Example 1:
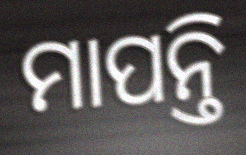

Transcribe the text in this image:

ମାପନ୍ତି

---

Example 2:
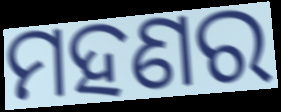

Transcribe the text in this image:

ମହଣର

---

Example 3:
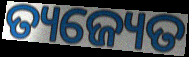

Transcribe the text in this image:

ତ୍ୟଜ୍ୟେତ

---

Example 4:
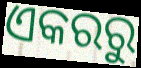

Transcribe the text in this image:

ଏକରରୁ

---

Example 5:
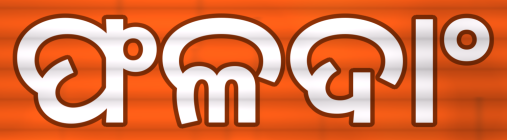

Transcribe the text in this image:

ଫଳଦାଂ